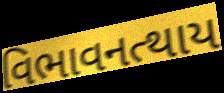
વિભાવનત્થાય